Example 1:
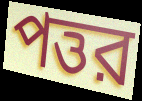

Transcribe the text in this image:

পত্তর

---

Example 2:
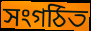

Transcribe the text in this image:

সংগঠিত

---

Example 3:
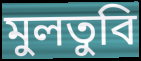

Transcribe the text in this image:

মুলতুবি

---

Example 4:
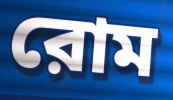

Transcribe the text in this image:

রোম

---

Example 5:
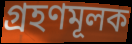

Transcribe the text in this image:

গ্রহণমূলক